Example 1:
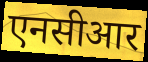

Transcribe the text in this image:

एनसीआर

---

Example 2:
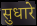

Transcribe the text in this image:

सुधारे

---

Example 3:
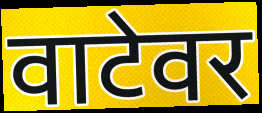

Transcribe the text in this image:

वाटेवर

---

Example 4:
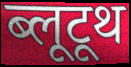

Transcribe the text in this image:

ब्लूटूथ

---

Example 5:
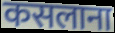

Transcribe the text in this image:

कसलाना